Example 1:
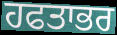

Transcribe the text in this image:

ਹਫਤਾਭਰ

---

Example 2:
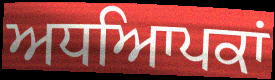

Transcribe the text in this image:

ਅਧਆਿਪਕਾਂ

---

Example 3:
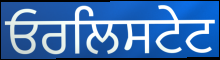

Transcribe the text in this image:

ਓਰਲਿਸਟੇਟ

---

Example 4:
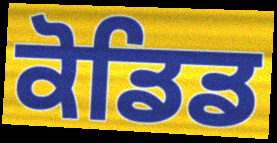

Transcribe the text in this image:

ਕੋਡਿਡ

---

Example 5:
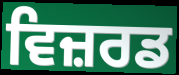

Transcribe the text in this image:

ਵਿਜ਼ਰਡ